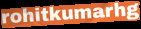
rohitkumarhg